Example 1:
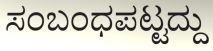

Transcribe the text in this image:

ಸಂಬಂಧಪಟ್ಟದ್ದು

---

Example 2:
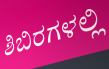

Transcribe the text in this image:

ಶಿಬಿರಗಳಲ್ಲಿ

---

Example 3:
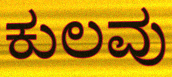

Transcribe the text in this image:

ಕುಲವು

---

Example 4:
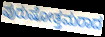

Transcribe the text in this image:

ಪುರುಷೋತ್ತಮರಾದ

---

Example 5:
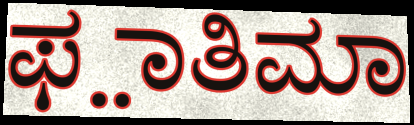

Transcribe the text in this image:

ಫ಼ಾತಿಮಾ